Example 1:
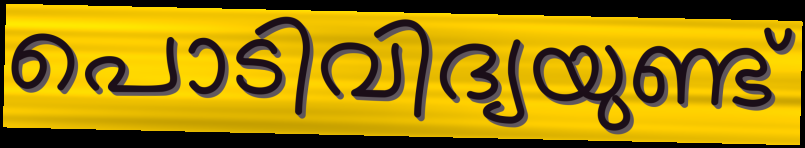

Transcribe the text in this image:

പൊടിവിദ്യയുണ്ട്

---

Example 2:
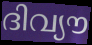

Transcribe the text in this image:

ദിവ്യൗ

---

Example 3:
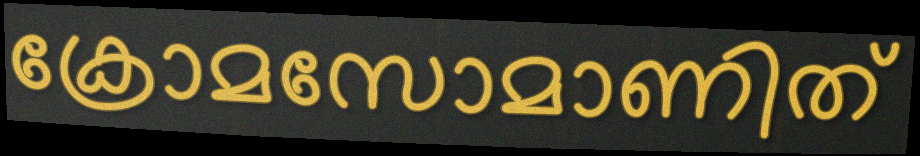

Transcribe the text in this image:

ക്രോമസോമാണിത്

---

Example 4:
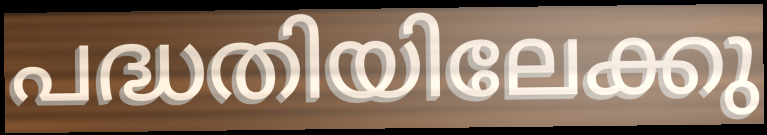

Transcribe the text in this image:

പദ്ധതിയിലേക്കു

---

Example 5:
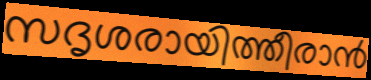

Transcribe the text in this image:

സദൃശരായിത്തീരാൻ